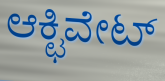
ಆಕ್ಟಿವೇಟ್